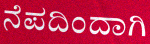
ನೆಪದಿಂದಾಗಿ